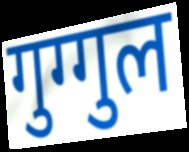
गुग्गुल